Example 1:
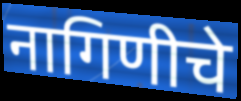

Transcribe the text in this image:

नागिणीचे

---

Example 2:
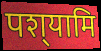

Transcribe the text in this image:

पश्यामि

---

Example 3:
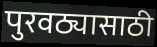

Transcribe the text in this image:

पुरवठ्यासाठी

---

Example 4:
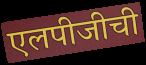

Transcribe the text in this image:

एलपीजीची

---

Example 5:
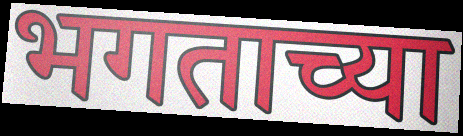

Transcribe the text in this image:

भगताच्या